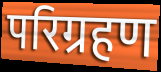
परिग्रहण